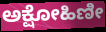
ಅಕ್ಷೋಹಿಣೀ